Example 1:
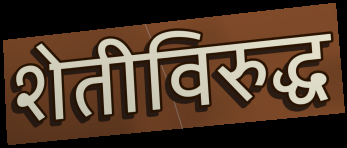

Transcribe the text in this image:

शेतीविरुद्ध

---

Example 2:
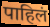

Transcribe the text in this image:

पाहिलं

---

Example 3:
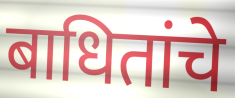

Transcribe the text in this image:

बाधितांचे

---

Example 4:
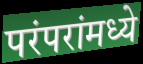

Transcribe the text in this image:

परंपरांमध्ये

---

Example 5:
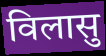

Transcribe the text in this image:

विलासु